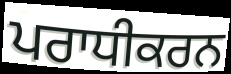
ਪਰਾਧੀਕਰਨ